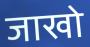
जाखो